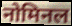
नोमिनल